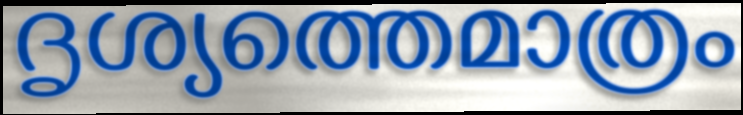
ദൃശ്യത്തെമാത്രം